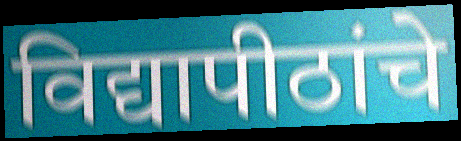
विद्यापीठांचे